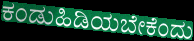
ಕಂಡುಹಿಡಿಯಬೇಕೆಂದು